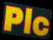
Plc